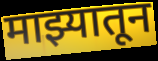
माझ्यातून